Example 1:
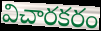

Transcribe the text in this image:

విచారకరం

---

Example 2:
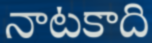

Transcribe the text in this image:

నాటకాది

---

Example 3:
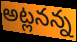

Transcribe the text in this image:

అట్లనన్న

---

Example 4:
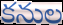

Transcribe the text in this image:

కనుల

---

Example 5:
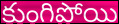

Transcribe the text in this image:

కుంగిపోయి